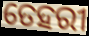
ତେହରୀ